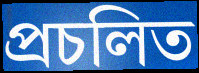
প্ৰচলিত